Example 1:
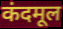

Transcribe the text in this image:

कंदमूल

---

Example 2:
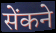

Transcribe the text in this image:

सेंकने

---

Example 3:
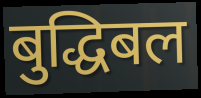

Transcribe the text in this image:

बुद्धिबल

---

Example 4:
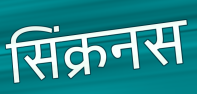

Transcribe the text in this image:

सिंक्रनस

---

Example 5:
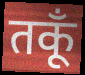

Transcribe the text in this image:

तकूँ